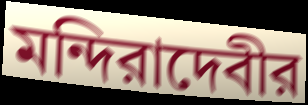
মন্দিরাদেবীর